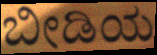
ಬೀಡಿಯ